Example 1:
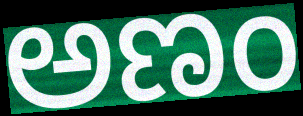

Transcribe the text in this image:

ಅಣಂ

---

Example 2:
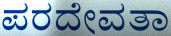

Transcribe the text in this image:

ಪರದೇವತಾ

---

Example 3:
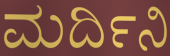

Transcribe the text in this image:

ಮರ್ದಿನಿ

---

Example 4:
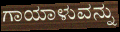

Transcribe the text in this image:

ಗಾಯಾಳುವನ್ನು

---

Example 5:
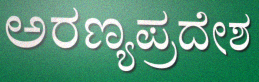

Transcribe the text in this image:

ಅರಣ್ಯಪ್ರದೇಶ